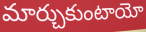
మార్చుకుంటాయో